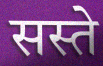
सस्‍ते